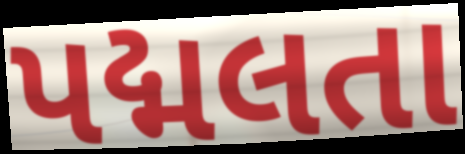
પદ્મલતા